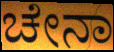
ಚೇನಾ